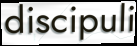
discipuli